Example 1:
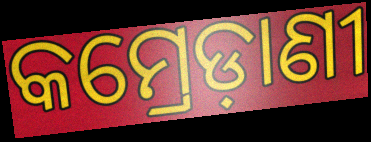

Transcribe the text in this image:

କମ୍ରେଡ଼ାଣୀ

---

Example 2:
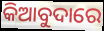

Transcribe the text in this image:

କିଆବୁଦାରେ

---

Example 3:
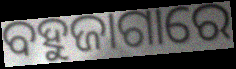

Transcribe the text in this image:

ବହୁଜାଗାରେ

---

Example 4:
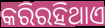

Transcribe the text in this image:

କରିରହିଥାଏ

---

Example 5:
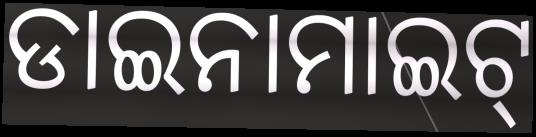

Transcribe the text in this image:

ଡାଇନାମାଇଟ୍